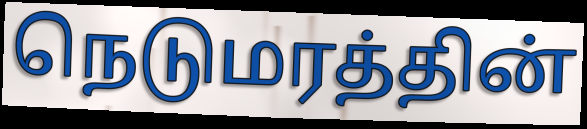
நெடுமரத்தின்